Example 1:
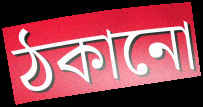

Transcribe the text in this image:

ঠকানো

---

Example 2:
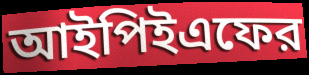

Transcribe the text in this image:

আইপিইএফের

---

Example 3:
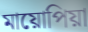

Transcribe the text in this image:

মায়োপিয়া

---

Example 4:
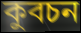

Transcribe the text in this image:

কুবচন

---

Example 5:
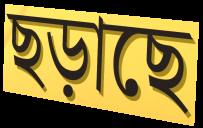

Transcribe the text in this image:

ছড়াছে